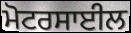
ਮੋਟਰਸਾਈਲ